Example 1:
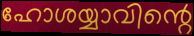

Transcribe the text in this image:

ഹോശയ്യാവിന്റെ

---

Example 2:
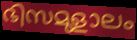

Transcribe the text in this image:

ഭിസമുളാലം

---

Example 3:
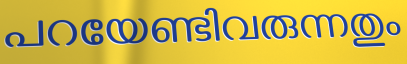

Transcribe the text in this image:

പറയേണ്ടിവരുന്നതും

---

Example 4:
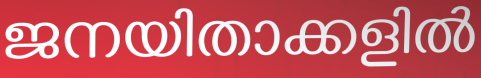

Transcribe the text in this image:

ജനയിതാക്കളിൽ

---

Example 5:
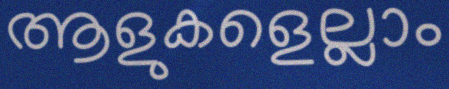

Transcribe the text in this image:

ആളുകളെല്ലാം